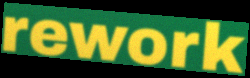
rework